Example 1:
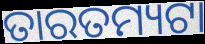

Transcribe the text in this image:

ତାରତମ୍ୟଟା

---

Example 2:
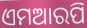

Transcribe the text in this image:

ଏମଆରପି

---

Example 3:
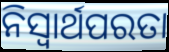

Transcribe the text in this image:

ନିସ୍ଵାର୍ଥପରତା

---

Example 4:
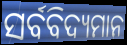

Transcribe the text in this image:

ସର୍ବବିଦ୍ୟମାନ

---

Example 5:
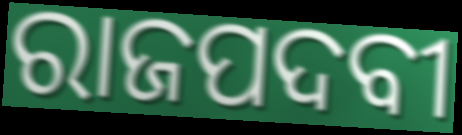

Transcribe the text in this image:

ରାଜପଦବୀ